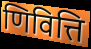
णिवित्ति